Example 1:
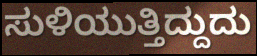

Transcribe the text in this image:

ಸುಳಿಯುತ್ತಿದ್ದುದು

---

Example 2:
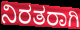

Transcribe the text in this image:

ನಿರತರಾಗಿ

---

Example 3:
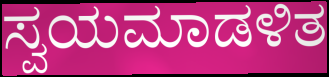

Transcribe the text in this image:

ಸ್ವಯಮಾಡಳಿತ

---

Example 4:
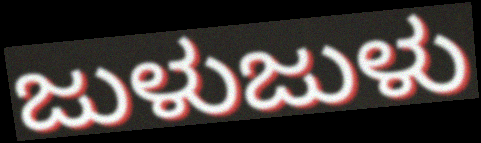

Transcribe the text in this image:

ಜುಳುಜುಳು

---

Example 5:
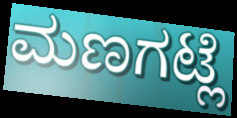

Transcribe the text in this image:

ಮಣಗಟ್ಲೆ